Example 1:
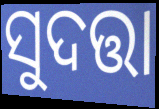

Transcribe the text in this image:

ସୁଦତ୍ତା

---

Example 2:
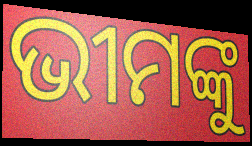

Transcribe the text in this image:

ଭୀମଙ୍କୁ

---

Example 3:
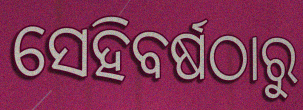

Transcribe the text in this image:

ସେହିବର୍ଷଠାରୁ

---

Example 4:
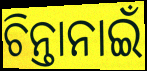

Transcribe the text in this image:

ଚିନ୍ତାନାଇଁ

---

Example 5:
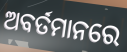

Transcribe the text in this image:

ଅବର୍ତମାନରେ